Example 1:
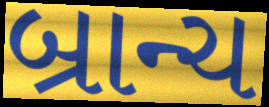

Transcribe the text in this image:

બ્રાન્ચ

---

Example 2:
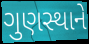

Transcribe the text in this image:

ગુણસ્થાને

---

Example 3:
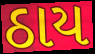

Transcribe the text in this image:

ઠાય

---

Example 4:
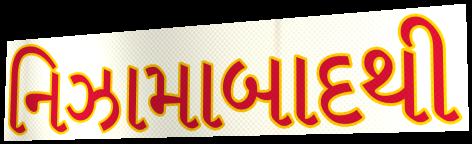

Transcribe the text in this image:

નિઝામાબાદથી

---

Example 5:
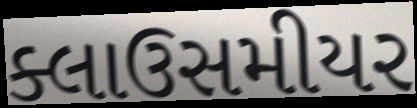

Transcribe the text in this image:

ક્લાઉસમીયર